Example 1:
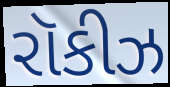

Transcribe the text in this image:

રૉકીઝ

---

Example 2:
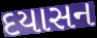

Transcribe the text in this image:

દયાસન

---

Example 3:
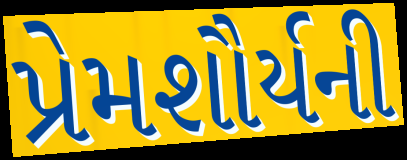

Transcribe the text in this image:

પ્રેમશૌર્યની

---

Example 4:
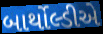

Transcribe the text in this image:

બાર્થોલ્ડીએ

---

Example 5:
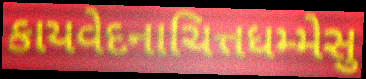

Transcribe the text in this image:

કાયવેદનાચિત્તધમ્મેસુ